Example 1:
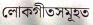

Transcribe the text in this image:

লোকগীতসমূহত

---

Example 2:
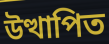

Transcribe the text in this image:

উত্থাপিত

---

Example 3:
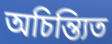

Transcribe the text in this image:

অচিন্ত্যিত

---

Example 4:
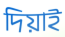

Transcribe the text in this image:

দিয়াই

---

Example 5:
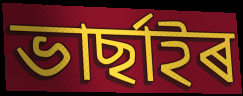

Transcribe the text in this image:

ভাৰ্ছাইৰ